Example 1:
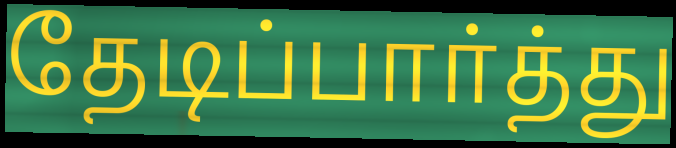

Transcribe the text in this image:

தேடிப்பார்த்து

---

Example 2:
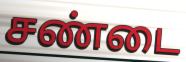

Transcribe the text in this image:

சண்டை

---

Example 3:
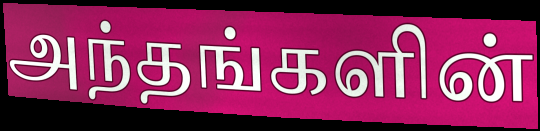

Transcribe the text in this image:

அந்தங்களின்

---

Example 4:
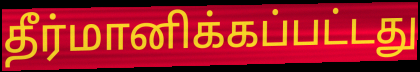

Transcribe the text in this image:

தீர்மானிக்கப்பட்டது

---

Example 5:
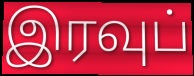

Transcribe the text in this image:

இரவுப்